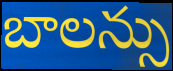
బాలన్సు